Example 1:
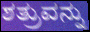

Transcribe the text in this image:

ಶತ್ರುವನ್ನು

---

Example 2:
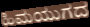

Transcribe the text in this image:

ಹಿಮಯುಗದ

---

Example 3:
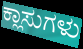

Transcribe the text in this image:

ಕ್ಲಾಸುಗಳು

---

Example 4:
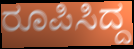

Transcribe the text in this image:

ರೂಪಿಸಿದ್ದ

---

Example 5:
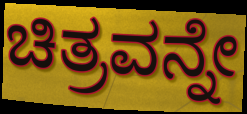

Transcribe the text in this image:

ಚಿತ್ರವನ್ನೇ